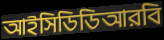
আইসিডিডিআরবি